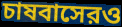
চাষবাসেরও